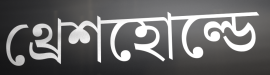
থ্রেশহোল্ডে